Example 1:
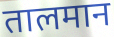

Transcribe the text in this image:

तालमान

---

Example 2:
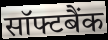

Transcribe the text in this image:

सॉफ्टबैंक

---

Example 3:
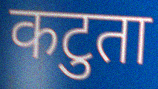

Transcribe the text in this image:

कटुता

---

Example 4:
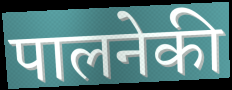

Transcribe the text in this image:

पालनेकी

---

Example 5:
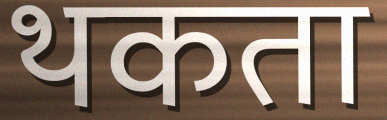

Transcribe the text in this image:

थकता